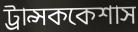
ট্রান্সককেশাস